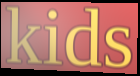
kids